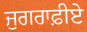
ਜੁਗਰਾਫ਼ੀਏ